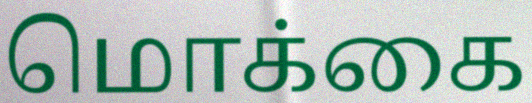
மொக்கை